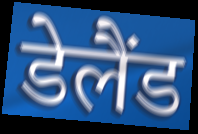
डेलैंड